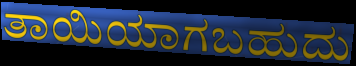
ತಾಯಿಯಾಗಬಹುದು